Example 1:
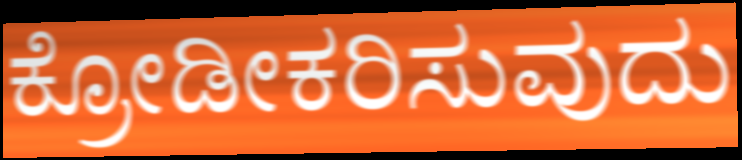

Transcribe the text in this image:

ಕ್ರೋಡೀಕರಿಸುವುದು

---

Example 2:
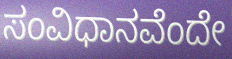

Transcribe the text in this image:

ಸಂವಿಧಾನವೆಂದೇ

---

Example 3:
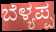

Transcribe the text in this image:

ಬೆಳ್ಯಪ್ಪ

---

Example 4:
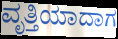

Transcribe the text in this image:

ವೃತ್ತಿಯಾದಾಗ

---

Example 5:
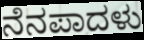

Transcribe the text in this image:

ನೆನಪಾದಳು